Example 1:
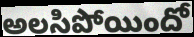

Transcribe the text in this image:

అలసిపోయిందో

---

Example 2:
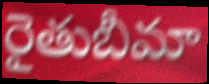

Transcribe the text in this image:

రైతుబీమా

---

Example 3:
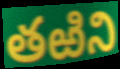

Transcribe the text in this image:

తఱిని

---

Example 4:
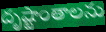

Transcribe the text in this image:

దృష్టాంతాలను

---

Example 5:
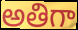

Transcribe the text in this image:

అతిగా